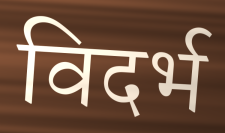
विदर्भ